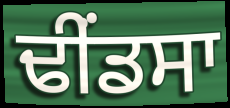
ਢੀੰਂਡਸਾ